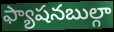
ఫ్యాషనబుల్గా